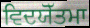
ਵਿਦਯੋੱਤਮਾ